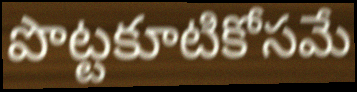
పొట్టకూటికోసమే